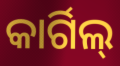
କାର୍ଗିଲ୍